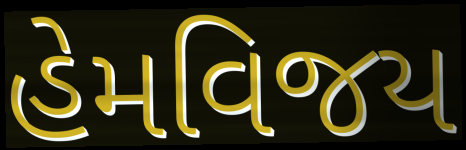
હેમવિજય